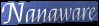
Nanaware